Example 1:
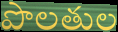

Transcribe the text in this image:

పొలతుల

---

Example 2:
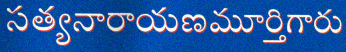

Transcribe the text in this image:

సత్యనారాయణమూర్తిగారు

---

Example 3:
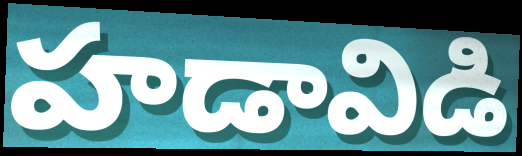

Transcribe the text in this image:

హడావిడి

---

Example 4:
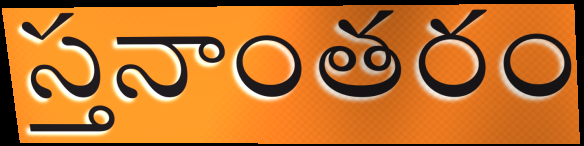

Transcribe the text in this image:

స్తనాంతరం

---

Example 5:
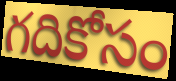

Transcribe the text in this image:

గదికోసం